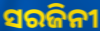
ସରଜିନୀ